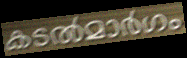
കടൽമാർഗം